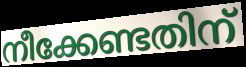
നീക്കേണ്ടതിന്